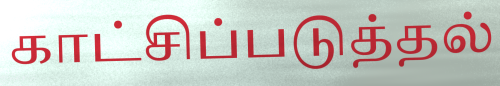
காட்சிப்படுத்தல்